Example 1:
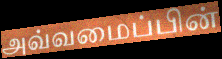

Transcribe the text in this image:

அவ்வமைப்பின்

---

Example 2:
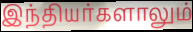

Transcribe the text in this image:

இந்தியர்களாலும்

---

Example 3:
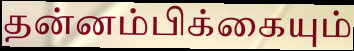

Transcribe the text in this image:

தன்னம்பிக்கையும்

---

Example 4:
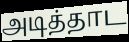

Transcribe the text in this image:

அடித்தாட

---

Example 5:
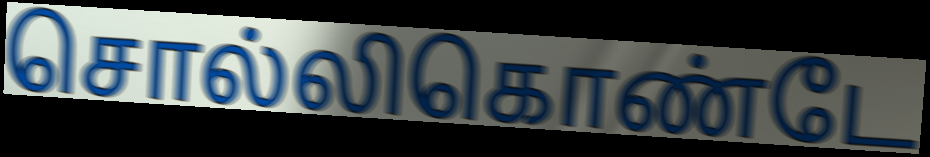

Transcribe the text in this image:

சொல்லிகொண்டே